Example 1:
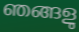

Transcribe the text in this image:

ഞങ്ങളു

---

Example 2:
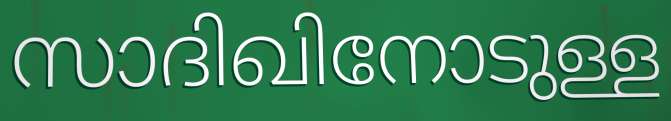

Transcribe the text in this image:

സാദിഖിനോടുള്ള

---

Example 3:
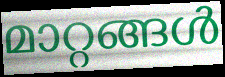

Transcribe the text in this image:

മാറ്റങ്ങൾ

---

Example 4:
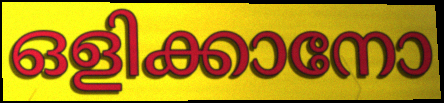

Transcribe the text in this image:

ഒളിക്കാനോ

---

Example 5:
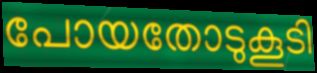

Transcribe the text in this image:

പോയതോടുകൂടി